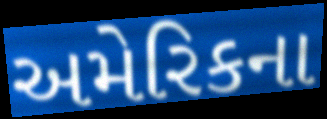
અમેરિકના